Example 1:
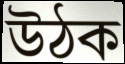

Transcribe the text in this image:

উঠক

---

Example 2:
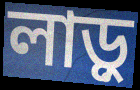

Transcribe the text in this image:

লাড়ু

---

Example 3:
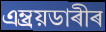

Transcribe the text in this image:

এম্ব্ৰয়ডাৰীৰ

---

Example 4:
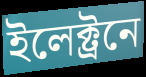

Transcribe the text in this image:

ইলেক্ট্ৰনে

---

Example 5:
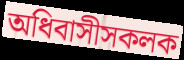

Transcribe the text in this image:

অধিবাসীসকলক